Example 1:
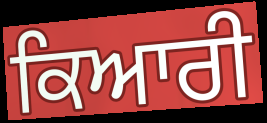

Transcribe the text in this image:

ਕਿਆਰੀ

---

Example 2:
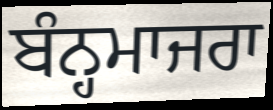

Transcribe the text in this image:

ਬੰਨ੍ਹਮਾਜਰਾ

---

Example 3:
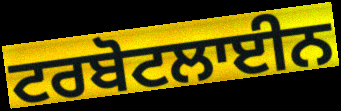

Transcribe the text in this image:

ਟਰਬੋਟਲਾਈਨ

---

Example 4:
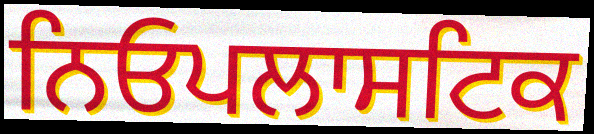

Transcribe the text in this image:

ਨਿਓਪਲਾਸਟਿਕ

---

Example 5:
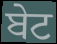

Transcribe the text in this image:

ਬੇਟ